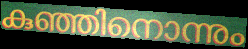
കുഞ്ഞിനൊന്നും